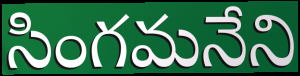
సింగమనేని